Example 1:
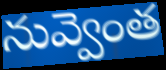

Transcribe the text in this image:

నువ్వెంత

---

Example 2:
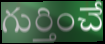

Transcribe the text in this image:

గుర్తించే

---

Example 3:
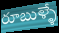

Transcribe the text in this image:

రూబుళ్ళే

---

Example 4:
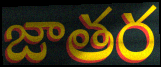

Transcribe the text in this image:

జాతర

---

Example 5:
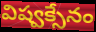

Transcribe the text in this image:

విష్వక్సేనం